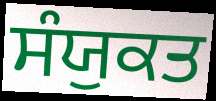
ਸੰਯੁਕਤ